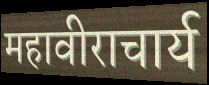
महावीराचार्य